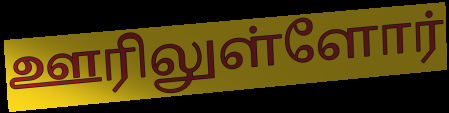
ஊரிலுள்ளோர்